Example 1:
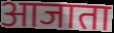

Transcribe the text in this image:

आजाता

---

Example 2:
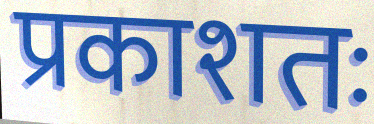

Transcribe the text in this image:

प्रकाशतः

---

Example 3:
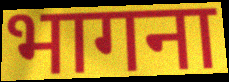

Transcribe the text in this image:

भागना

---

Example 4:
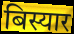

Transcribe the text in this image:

बिस्यार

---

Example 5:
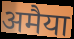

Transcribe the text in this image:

अमैया